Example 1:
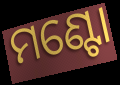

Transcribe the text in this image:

ମଣ୍ଟୋ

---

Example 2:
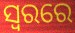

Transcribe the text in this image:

ସ୍ୱରରେ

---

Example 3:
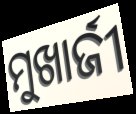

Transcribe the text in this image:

ମୁଖାର୍ଜୀ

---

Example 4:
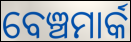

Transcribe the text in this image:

ବେଞ୍ଚମାର୍କ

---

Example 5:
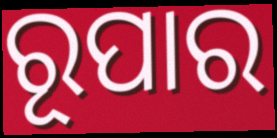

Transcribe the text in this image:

ରୂପାର